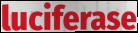
luciferase